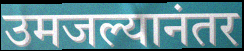
उमजल्यानंतर